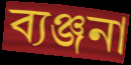
ব্যঞ্জনা